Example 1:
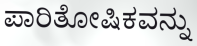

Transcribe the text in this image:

ಪಾರಿತೋಷಿಕವನ್ನು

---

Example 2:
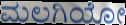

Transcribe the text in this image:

ಮಲಗಿಯೋ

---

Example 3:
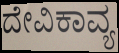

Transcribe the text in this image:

ದೇವಿಕಾವ್ಯ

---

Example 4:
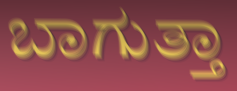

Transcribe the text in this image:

ಬಾಗುತ್ತಾ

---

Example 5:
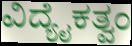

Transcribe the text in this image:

ವಿದ್ಯೈಕತ್ವಂ